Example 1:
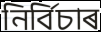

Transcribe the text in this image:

নিৰ্বিচাৰ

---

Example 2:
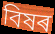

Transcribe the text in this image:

বিষৰ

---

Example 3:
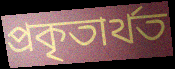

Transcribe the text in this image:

প্ৰকৃতাৰ্থত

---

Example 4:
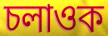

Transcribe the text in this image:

চলাওক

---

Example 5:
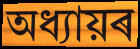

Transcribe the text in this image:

অধ্যায়ৰ